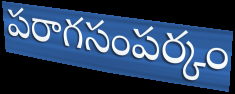
పరాగసంపర్కం